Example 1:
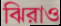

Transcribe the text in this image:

ঝিরাও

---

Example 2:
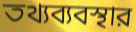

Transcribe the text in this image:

তথ্যব্যবস্থার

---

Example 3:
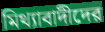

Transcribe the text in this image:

মিথ্যাবাদীদের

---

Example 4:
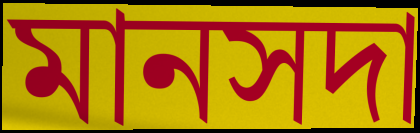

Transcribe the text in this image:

মানসদা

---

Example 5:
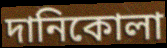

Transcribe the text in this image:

দানিকোলা